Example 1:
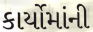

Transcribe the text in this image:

કાર્યોમાંની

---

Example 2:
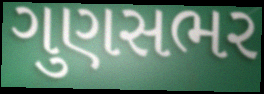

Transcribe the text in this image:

ગુણસભર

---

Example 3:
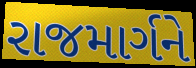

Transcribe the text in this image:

રાજમાર્ગને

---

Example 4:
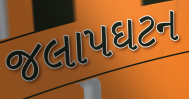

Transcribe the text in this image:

જલાપઘટન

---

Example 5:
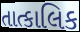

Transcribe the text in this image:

તાત્કાલિક